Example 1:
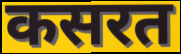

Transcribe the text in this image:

कसरत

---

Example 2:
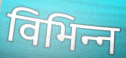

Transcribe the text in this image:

विभिन्न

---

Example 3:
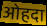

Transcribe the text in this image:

ओहदा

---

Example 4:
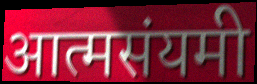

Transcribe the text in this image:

आत्मसंयमी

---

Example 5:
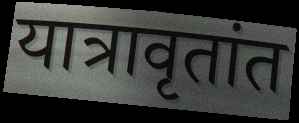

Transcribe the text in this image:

यात्रावृतांत